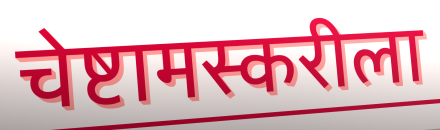
चेष्टामस्करीला